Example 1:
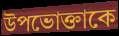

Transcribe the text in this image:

উপভোক্তাকে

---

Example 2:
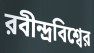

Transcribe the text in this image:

রবীন্দ্রবিশ্বের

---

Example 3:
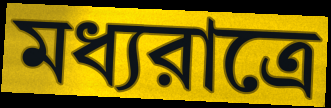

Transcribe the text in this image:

মধ্যরাত্রে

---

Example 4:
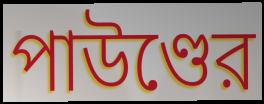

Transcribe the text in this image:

পাউণ্ডের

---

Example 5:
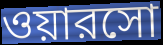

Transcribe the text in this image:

ওয়ারসো